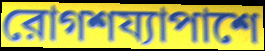
রোগশয্যাপাশে